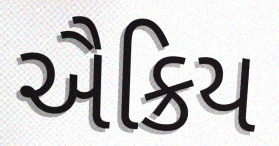
ઐક્રિય